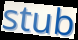
stub